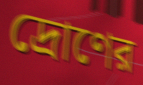
দ্রোণের